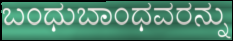
ಬಂಧುಬಾಂಧವರನ್ನು